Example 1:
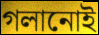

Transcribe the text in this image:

গলানোই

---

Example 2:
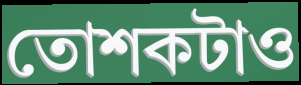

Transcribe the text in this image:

তোশকটাও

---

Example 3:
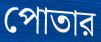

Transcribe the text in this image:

পোতার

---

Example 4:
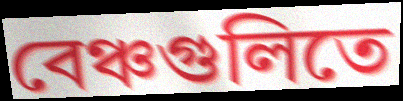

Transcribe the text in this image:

বেঞ্চগুলিতে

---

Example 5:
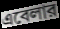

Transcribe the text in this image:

এবেলার